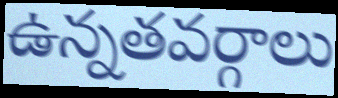
ఉన్నతవర్గాలు